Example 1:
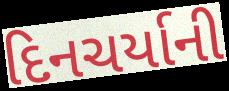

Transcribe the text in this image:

દિનચર્યાની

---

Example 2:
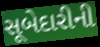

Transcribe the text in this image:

સૂબેદારીની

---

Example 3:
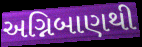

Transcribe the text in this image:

અગ્નિબાણથી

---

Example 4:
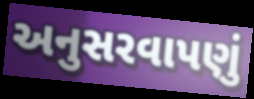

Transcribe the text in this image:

અનુસરવાપણું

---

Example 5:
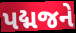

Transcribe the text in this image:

પદ્મજને